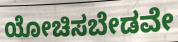
ಯೋಚಿಸಬೇಡವೇ